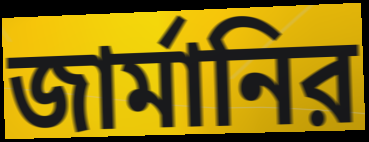
জার্মানির